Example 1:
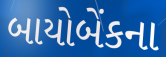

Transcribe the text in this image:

બાયોબેંકના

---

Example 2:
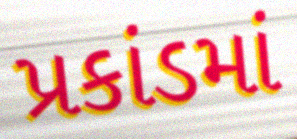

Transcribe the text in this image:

પ્રકાંડમાં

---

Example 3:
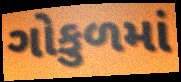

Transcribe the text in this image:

ગોકુળમાં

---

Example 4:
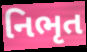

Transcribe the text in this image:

નિભૃત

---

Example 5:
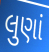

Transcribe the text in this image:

લુણાં